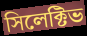
সিলেক্টিভ